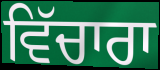
ਵਿੱਚਾਰਾ